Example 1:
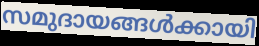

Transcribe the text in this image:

സമുദായങ്ങൾക്കായി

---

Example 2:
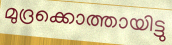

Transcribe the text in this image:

മുദ്രക്കൊത്തായിട്ടു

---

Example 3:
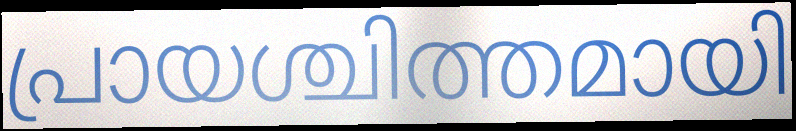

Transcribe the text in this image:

പ്രായശ്ചിത്തമായി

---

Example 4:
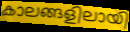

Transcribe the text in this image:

കാലങ്ങളിലായി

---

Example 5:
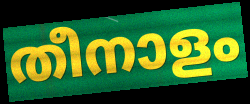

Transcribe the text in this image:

തീനാളം